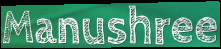
Manushree